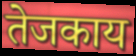
तेजकाय